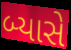
બ્યાસે